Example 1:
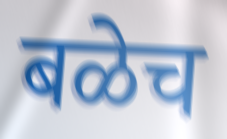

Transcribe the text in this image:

बळेच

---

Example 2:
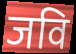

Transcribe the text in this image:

जवि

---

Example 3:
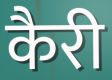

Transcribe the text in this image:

कैरी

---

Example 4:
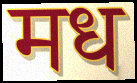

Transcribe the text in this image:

मध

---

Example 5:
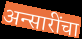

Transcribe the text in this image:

अन्सारींचा